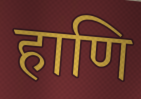
हाणि